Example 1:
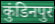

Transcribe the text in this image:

कुंडिनपुर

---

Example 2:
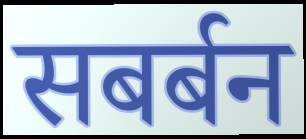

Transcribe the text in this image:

सबर्बन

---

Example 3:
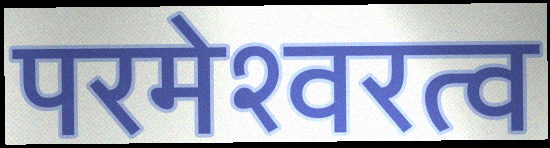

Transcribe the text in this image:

परमेश्वरत्व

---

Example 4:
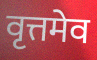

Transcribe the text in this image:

वृत्तमेव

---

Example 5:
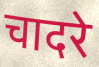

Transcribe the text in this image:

चादरे